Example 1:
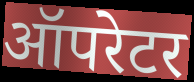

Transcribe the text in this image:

ऑपरेटर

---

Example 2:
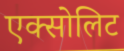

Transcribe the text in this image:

एक्सोलिट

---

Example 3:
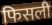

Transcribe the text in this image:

फिसली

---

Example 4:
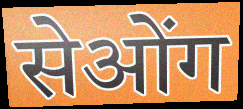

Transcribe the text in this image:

सेओंग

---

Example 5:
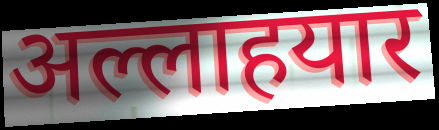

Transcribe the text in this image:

अल्लाहयार